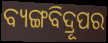
ବ୍ୟଙ୍ଗବିଦ୍ରୂପର